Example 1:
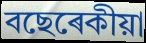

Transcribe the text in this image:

বছেৰেকীয়া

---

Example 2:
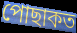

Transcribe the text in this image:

পোছাকত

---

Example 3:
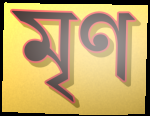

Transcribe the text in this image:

মৃণ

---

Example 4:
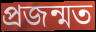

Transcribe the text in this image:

প্ৰজন্মত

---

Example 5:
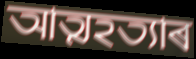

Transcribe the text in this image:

আত্মহত্যাৰ